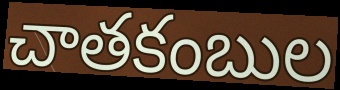
చాతకంబుల